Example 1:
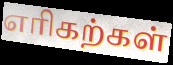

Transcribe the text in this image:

எரிகற்கள்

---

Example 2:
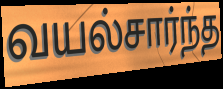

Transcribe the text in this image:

வயல்சார்ந்த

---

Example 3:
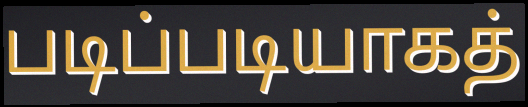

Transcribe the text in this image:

படிப்படியாகத்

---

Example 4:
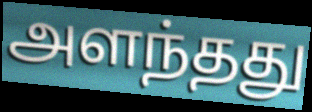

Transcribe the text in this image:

அளந்தது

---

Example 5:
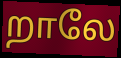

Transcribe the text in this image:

றாலே